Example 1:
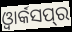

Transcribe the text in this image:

ଓ୍ୱାର୍କସପ୍‌ର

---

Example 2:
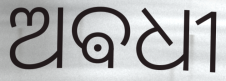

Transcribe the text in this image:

ଅଵଧୀ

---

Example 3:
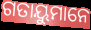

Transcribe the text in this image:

ଗତାୟୁମାନେ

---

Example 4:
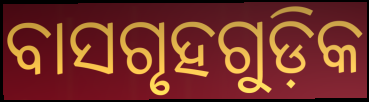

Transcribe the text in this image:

ବାସଗୃହଗୁଡ଼ିକ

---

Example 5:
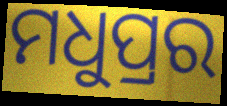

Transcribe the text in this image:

ମଧୁପ୍ରର